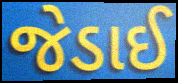
જેડાઈ